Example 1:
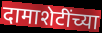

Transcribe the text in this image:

दामाशेटींच्या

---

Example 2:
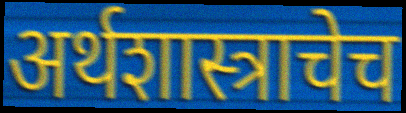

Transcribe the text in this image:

अर्थशास्त्राचेच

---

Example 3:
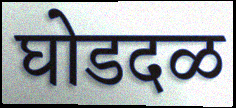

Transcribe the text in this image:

घोडदळ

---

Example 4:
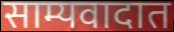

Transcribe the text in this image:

साम्यवादात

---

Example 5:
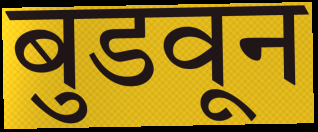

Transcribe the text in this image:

बुडवून